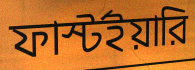
ফার্স্টইয়ারি